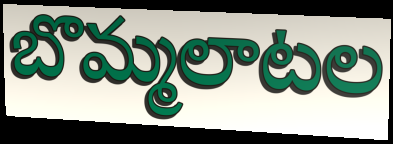
బొమ్మలాటల